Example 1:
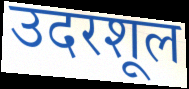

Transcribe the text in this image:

उदरशूल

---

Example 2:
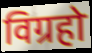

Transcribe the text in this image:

विग्रहो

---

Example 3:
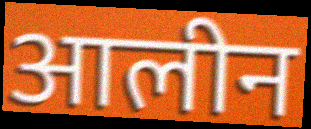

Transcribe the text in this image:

आलीन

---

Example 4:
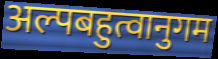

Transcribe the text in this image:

अल्पबहुत्वानुगम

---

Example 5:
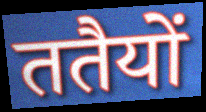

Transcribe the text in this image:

ततैयों